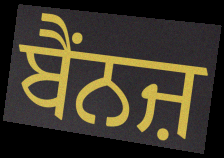
ਬੈਂਨਜ਼